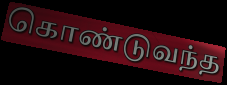
கொண்டுவந்த